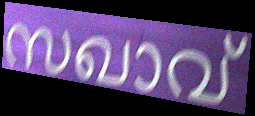
സഖാവ്